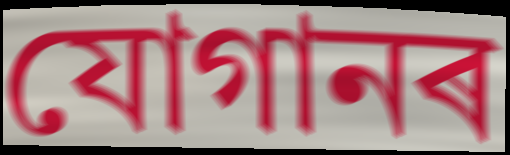
যোগানৰ